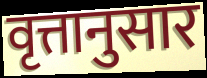
वृत्तानुसार